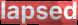
lapsed